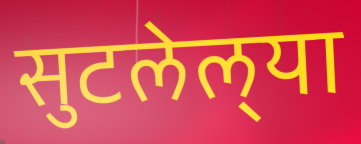
सुटलेल्या